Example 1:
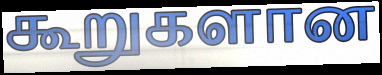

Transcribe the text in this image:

கூறுகளான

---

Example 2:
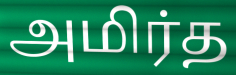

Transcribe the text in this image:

அமிர்த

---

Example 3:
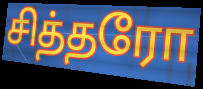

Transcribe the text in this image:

சித்தரோ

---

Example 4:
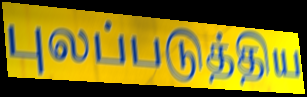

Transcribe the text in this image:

புலப்படுத்திய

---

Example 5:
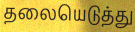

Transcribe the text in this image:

தலையெடுத்து